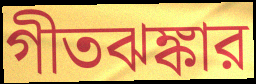
গীতঝঙ্কার